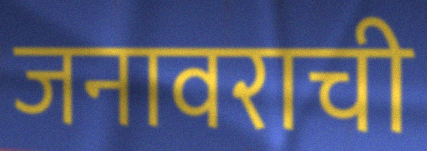
जनावराची